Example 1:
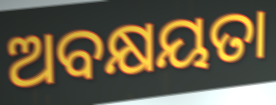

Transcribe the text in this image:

ଅବକ୍ଷୟତା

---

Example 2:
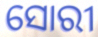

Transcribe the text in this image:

ସୋରୀ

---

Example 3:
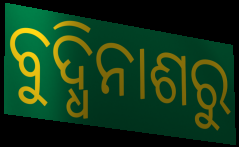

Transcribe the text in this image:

ବୁଦ୍ଧିନାଶରୁ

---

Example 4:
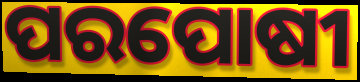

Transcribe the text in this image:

ପରପୋଷୀ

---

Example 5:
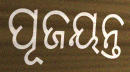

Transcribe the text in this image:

ପୂଜୟନ୍ତ